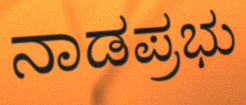
ನಾಡಪ್ರಭು